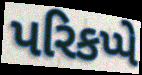
પરિકપ્પે